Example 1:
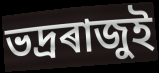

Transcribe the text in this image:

ভদ্ৰৰাজুই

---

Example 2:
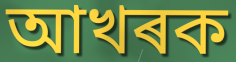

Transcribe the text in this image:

আখৰক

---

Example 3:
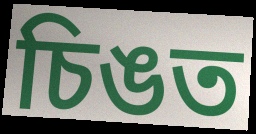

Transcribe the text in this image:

চিঙত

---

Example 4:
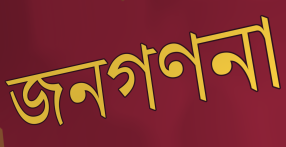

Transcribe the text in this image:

জনগণনা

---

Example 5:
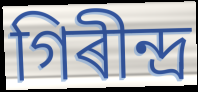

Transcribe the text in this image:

গিৰীন্দ্ৰ